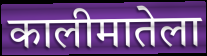
कालीमातेला